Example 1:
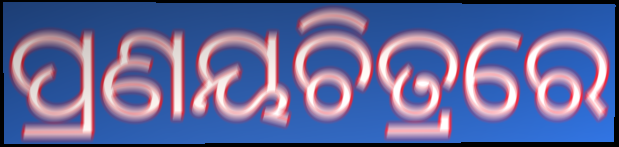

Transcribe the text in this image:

ପ୍ରଣୟଚିତ୍ରରେ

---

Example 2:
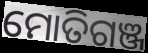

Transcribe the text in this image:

ମୋତିଗଞ୍ଜ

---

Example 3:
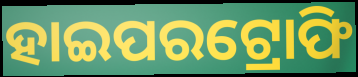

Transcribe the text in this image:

ହାଇପରଟ୍ରୋଫି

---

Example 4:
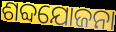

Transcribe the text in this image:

ଶବ୍ଦଯୋଜନା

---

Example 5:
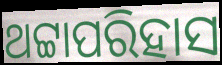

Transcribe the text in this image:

ଥଟ୍ଟାପରିହାସ